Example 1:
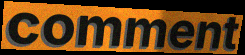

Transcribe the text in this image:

comment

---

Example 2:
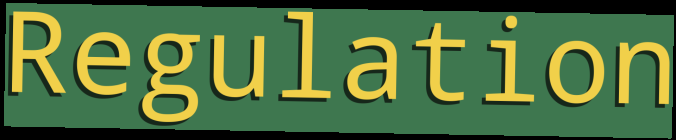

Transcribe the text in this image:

Regulation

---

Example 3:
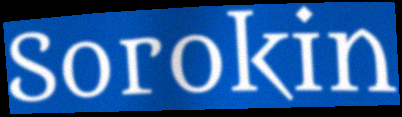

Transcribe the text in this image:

Sorokin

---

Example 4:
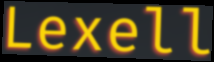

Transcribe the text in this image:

Lexell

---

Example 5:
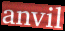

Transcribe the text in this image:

anvil